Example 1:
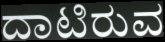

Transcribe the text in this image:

ದಾಟಿರುವ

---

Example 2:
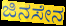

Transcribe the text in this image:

ಜಿನಸೇನ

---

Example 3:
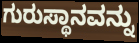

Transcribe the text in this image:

ಗುರುಸ್ಥಾನವನ್ನು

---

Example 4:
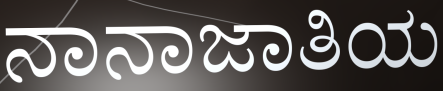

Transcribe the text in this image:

ನಾನಾಜಾತಿಯ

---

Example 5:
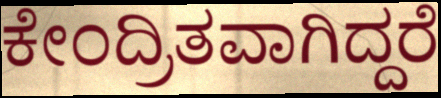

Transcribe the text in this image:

ಕೇಂದ್ರಿತವಾಗಿದ್ದರೆ